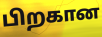
பிறகான